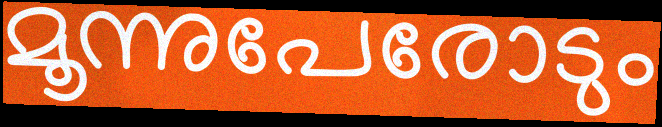
മൂന്നുപേരോടും